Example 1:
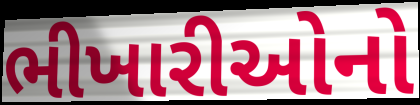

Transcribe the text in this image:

ભીખારીઓનો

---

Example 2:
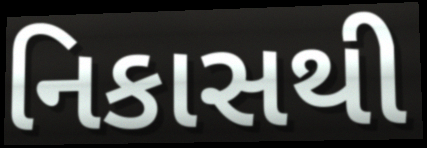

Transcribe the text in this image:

નિકાસથી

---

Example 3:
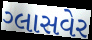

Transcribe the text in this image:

ગ્લાસવેર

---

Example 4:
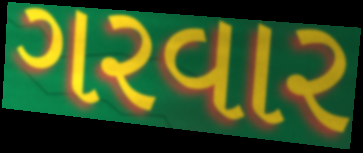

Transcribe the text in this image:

ગરવાર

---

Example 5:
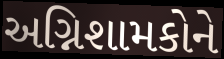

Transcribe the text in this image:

અગ્નિશામકોને